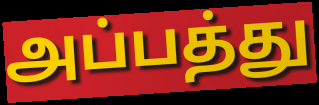
அப்பத்து